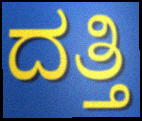
ದತ್ತಿ